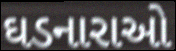
ઘડનારાઓ